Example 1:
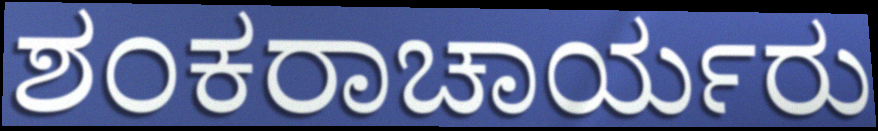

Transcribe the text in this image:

ಶಂಕರಾಚಾರ್ಯರು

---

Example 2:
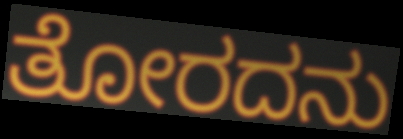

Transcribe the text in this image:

ತೋರದನು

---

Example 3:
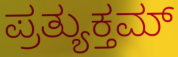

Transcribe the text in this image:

ಪ್ರತ್ಯುಕ್ತಮ್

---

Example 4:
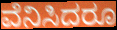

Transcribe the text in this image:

ವೆನಿಸಿದರೂ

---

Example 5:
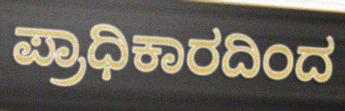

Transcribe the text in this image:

ಪ್ರಾಧಿಕಾರದಿಂದ